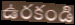
ఉరకండి